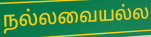
நல்லவையல்ல